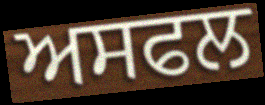
ਅਸਫਲ